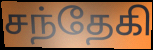
சந்தேகி